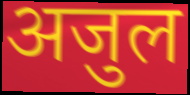
अजुल